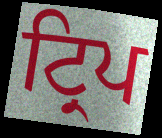
ਟ੍ਰਿਪ